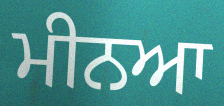
ਮੀਨਆ